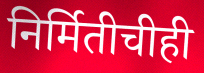
निर्मितीचीही